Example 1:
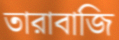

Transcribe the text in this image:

তারাবাজি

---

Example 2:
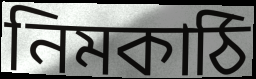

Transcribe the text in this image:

নিমকাঠি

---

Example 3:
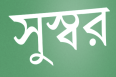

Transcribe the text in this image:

সুস্বর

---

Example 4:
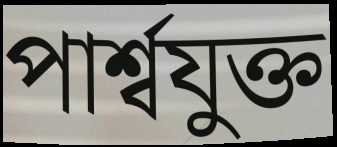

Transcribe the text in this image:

পার্শ্বযুক্ত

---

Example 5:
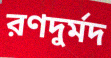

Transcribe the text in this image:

রণদুর্মদ